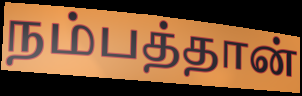
நம்பத்தான்